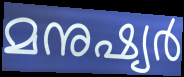
മനുഷ്യർ